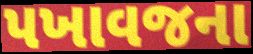
પખાવજના